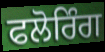
ਫਲੋਰਿੰਗ